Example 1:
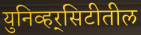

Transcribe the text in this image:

युनिव्हर्सिटीतील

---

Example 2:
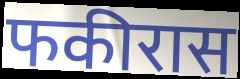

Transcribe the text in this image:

फकीरास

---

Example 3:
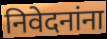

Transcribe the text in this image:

निवेदनांना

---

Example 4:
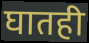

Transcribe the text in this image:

घातही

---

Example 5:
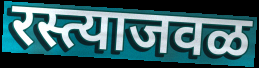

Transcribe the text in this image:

रस्त्याजवळ